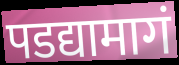
पडद्यामागं